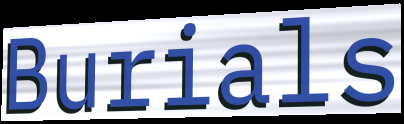
Burials